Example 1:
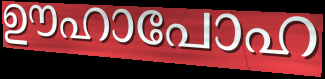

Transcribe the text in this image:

ഊഹാപോഹ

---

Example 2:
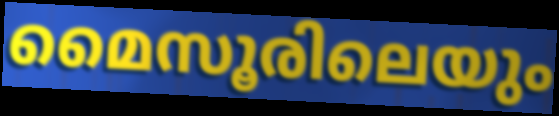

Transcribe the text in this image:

മൈസൂരിലെയും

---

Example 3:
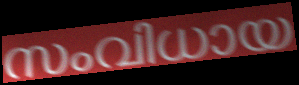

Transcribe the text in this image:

സംവിധായ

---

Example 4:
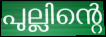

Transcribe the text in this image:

പുല്ലിന്റെ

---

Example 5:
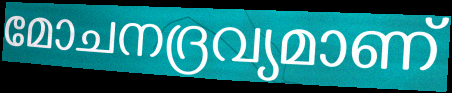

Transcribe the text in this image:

മോചനദ്രവ്യമാണ്